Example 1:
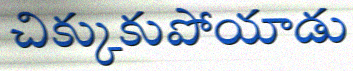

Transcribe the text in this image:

చిక్కుకుపోయాడు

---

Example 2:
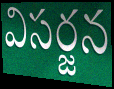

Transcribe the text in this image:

విసర్జన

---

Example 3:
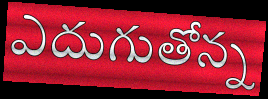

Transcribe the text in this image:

ఎదుగుతోన్న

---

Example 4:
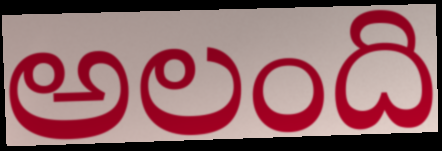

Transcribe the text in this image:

అలంది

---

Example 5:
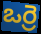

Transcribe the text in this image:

ఒర్రె